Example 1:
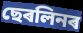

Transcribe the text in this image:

ছেৰলিনৰ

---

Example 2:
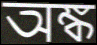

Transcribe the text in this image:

অঙ্ক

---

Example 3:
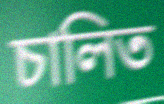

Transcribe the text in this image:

চালিত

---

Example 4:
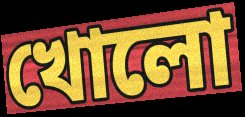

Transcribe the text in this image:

খোলো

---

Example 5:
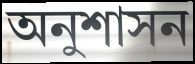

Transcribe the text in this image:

অনুশাসন